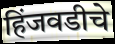
हिंजवडीचे